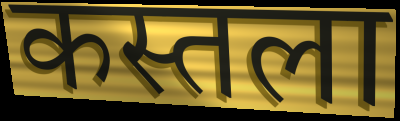
कस्तला